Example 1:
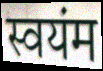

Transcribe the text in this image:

स्वयंम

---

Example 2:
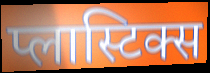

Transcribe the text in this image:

प्लास्टिक्स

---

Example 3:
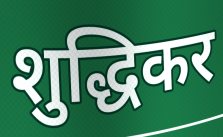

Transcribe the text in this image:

शुद्धिकर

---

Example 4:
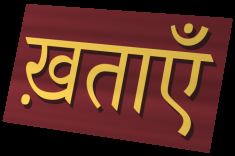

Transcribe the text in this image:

ख़ताएँ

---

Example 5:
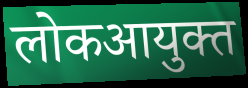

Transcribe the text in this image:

लोकआयुक्त